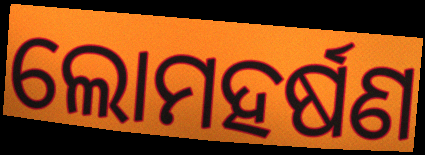
ଲୋମହର୍ଷଣ